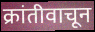
क्रांतीवाचून